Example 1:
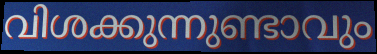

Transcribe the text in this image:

വിശക്കുന്നുണ്ടാവും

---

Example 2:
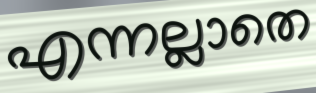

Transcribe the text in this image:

എന്നല്ലാതെ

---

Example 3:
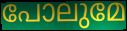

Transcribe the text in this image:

പോലുമേ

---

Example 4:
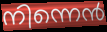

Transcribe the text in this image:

നിന്നെൻ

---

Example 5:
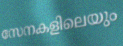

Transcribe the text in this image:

സേനകളിലെയും